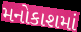
મનોકાશમાં